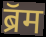
ब्रॅम